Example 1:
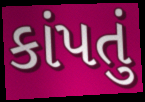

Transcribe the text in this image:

કાંપતું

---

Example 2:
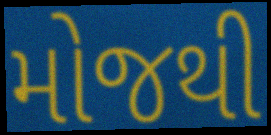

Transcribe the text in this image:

મોજથી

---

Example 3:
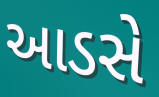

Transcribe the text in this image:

આડસે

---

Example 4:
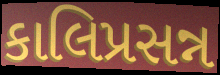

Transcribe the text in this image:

કાલિપ્રસન્ન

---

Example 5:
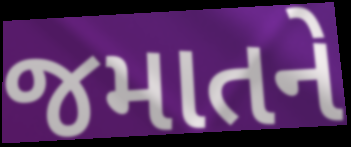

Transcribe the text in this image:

જમાતને